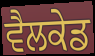
ਵੈਲਕੇਡ